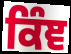
ਕਿੰਞ